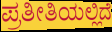
ಪ್ರತೀತಿಯಲ್ಲಿದೆ